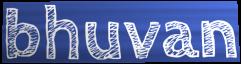
bhuvan